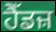
ਹੈੱਡਜ਼